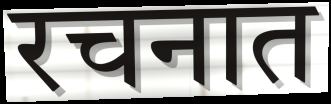
रचनात